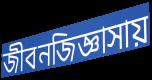
জীবনজিজ্ঞাসায়